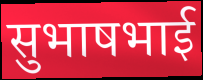
सुभाषभाई